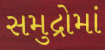
સમુદ્રોમાં